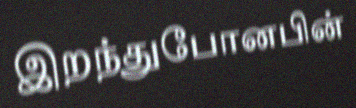
இறந்துபோனபின்